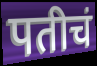
पतीचं